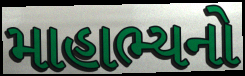
માહાભ્યનો